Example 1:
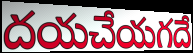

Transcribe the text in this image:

దయచేయగదే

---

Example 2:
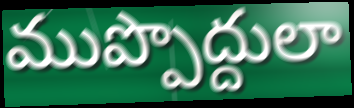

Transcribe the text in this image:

ముప్పొద్దులా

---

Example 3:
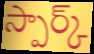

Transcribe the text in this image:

స్పార్క్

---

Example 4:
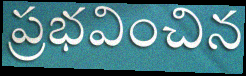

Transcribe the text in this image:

ప్రభవించిన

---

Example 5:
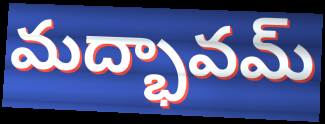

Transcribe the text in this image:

మద్భావమ్